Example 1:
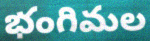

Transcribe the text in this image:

భంగిమల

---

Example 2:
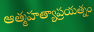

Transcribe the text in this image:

ఆత్మహత్యాప్రయత్నం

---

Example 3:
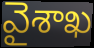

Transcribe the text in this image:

వైశాఖ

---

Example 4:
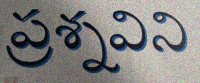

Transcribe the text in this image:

ప్రశ్నవిని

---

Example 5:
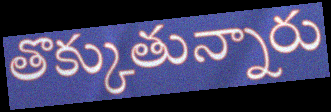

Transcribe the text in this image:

తొక్కుతున్నారు